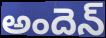
అందెన్